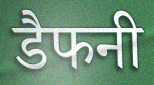
डैफनी